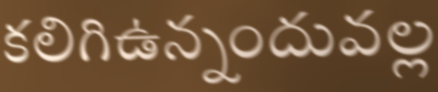
కలిగిఉన్నందువల్ల